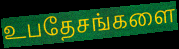
உபதேசங்களை